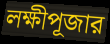
লক্ষীপূজার